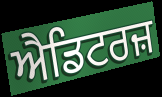
ਐਡਿਟਰਜ਼